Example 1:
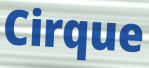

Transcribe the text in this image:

Cirque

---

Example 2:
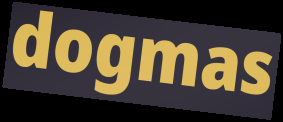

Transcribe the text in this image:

dogmas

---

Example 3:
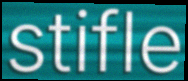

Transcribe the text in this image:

stifle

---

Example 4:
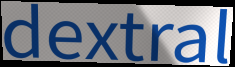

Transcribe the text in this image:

dextral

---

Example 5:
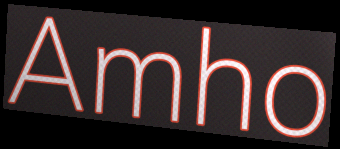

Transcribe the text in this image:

Amho